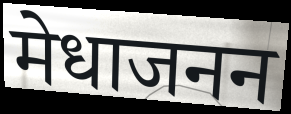
मेधाजनन